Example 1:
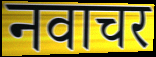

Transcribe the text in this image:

नवाचर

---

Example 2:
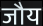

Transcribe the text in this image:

जौय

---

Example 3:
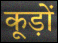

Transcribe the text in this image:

कूड़ों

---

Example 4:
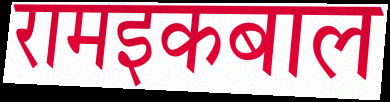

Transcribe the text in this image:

रामइकबाल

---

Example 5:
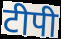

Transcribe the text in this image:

टीपी